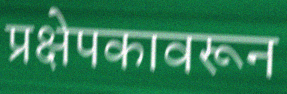
प्रक्षेपकावरून